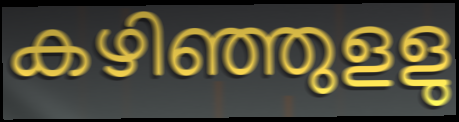
കഴിഞ്ഞുളളു